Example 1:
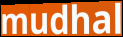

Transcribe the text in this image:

mudhal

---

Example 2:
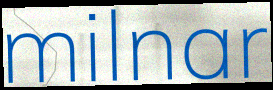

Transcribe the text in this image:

milnar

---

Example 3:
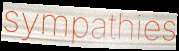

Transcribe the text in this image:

sympathies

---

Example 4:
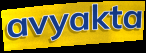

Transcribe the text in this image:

avyakta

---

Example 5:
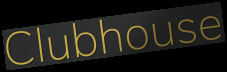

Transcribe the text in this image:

Clubhouse